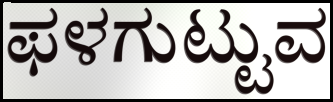
ಫಳಗುಟ್ಟುವ